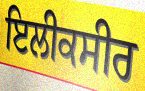
ਇਲੀਕਸੀਰ